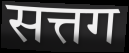
सत्तग